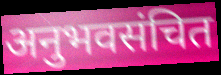
अनुभवसंचित